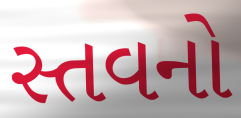
સ્તવનો